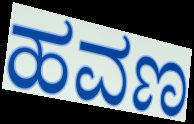
ಹವಣ